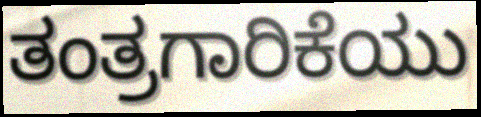
ತಂತ್ರಗಾರಿಕೆಯು